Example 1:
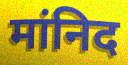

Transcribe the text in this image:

मांनिद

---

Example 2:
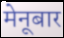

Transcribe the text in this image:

मेनूबार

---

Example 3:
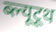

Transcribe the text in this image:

ब्ल्यूटूथ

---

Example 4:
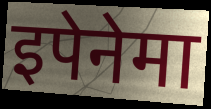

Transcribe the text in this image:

इपेनेमा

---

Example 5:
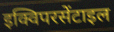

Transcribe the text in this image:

इक्विपरसेंटाइल